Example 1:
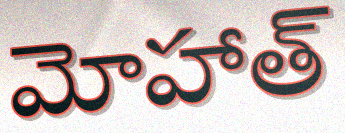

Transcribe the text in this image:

మోహాత్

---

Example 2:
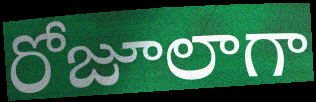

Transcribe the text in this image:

రోజూలాగా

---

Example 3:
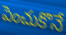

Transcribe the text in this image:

పెంచుకొనే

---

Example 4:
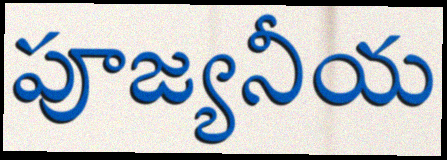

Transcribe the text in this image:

పూజ్యనీయ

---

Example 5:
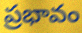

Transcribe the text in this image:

ప్రభావం